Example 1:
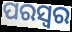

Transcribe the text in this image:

ପରସ୍ୱର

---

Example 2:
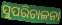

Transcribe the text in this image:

ସୁପରିଚାଳନା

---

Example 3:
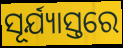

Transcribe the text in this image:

ସୂର୍ଯ୍ୟାସ୍ତରେ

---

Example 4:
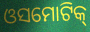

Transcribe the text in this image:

ଓସମୋଟିକ୍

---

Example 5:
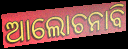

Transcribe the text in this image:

ଆଲୋଚନାବି